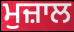
ਮੁਜ਼ਾਲ